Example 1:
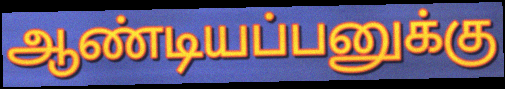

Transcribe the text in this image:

ஆண்டியப்பனுக்கு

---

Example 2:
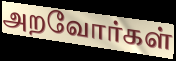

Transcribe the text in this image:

அறவோர்கள்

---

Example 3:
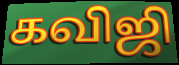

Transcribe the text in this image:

கவிஜி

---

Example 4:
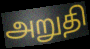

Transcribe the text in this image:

அறுதி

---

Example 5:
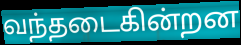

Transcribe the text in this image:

வந்தடைகின்றன